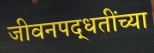
जीवनपद्धतींच्या